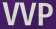
VVP